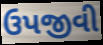
ઉપજીવી